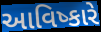
આવિષ્કારે